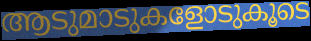
ആടുമാടുകളോടുകൂടെ